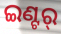
ଇଣ୍ଟର୍